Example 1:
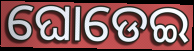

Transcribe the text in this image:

ଘୋଡେଇ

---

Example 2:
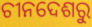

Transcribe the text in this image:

ଚୀନଦେଶରୁ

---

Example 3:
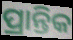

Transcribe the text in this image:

ପ୍ରାନ୍ତିକ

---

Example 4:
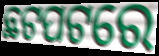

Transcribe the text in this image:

ଛଟପଟରେ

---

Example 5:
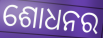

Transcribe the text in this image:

ଶୋଧନର